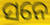
ସନେ